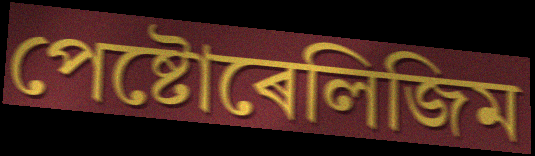
পেষ্টোৰেলিজিম